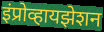
इंप्रोव्हायझेशन